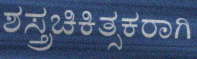
ಶಸ್ತ್ರಚಿಕಿತ್ಸಕರಾಗಿ